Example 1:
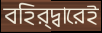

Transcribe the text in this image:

বহির্‌দ্বারেই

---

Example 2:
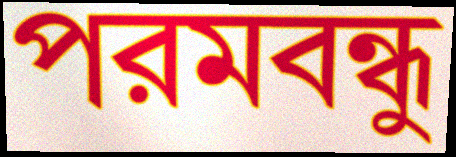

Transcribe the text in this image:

পরমবন্ধু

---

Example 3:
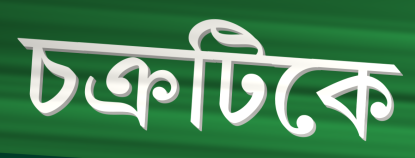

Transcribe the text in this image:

চক্রটিকে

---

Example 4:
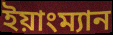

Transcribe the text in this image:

ইয়াংম্যান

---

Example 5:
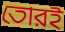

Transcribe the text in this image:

তোরই